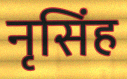
नृसिंह